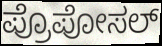
ಪ್ರೊಪೋಸಲ್